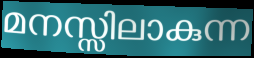
മനസ്സിലാകുന്ന